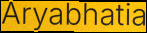
Aryabhatia